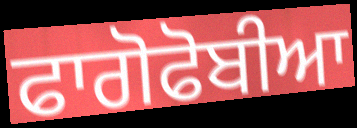
ਫਾਗੋਫੋਬੀਆ